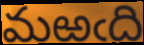
మఱఁది